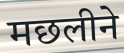
मछलीने